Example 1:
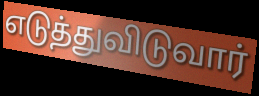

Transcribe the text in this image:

எடுத்துவிடுவார்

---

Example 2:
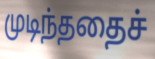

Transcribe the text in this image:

முடிந்ததைச்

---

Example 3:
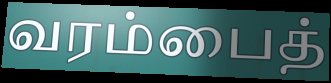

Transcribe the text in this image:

வரம்பைத்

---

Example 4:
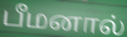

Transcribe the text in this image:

பீமனால்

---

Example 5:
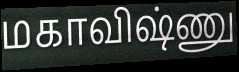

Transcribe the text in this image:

மகாவிஷ்ணு